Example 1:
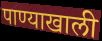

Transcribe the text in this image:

पाण्याखाली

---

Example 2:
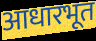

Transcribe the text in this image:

आधारभूत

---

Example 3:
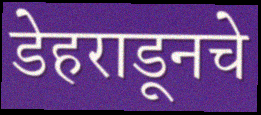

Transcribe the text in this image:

डेहराडूनचे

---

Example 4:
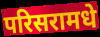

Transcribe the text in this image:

परिसरामधे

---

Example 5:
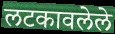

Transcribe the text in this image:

लटकावलेले